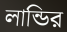
লান্ডির